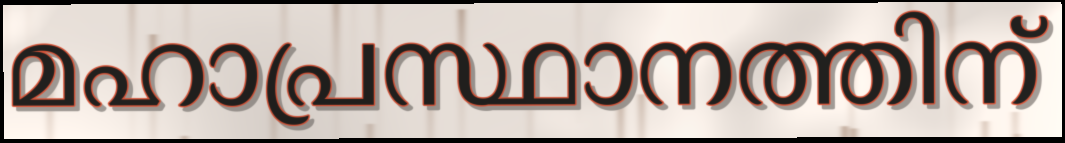
മഹാപ്രസ്ഥാനത്തിന്